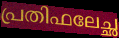
പ്രതിഫലേച്ഛ